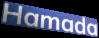
Hamada